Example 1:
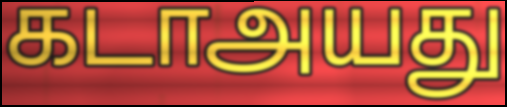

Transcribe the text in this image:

கடாஅயது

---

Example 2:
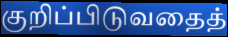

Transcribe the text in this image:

குறிப்பிடுவதைத்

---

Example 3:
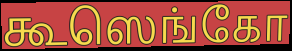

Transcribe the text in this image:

கூஸெங்கோ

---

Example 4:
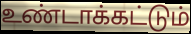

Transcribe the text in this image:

உண்டாக்கட்டும்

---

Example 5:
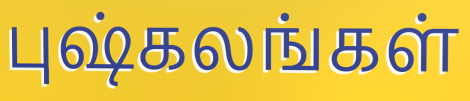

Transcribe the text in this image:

புஷ்கலங்கள்